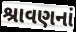
શ્રાવણનાં